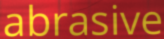
abrasive